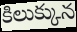
కిలుక్కున